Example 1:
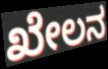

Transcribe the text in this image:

ಖೇಲನ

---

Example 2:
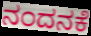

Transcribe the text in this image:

ನಂದನಕೆ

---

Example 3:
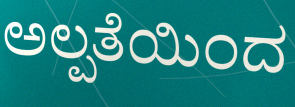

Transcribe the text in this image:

ಅಲ್ಪತೆಯಿಂದ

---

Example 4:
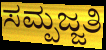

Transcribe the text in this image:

ಸಮ್ಪಜ್ಜತಿ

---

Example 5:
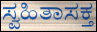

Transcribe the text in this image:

ಸ್ವಹಿತಾಸಕ್ತ